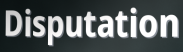
Disputation